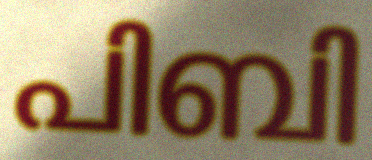
പിബി